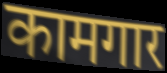
कामगार